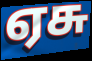
ஏசு